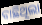
ବାଛିଥିଲା